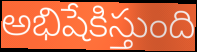
అభిషేకిస్తుంది